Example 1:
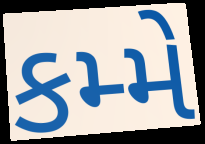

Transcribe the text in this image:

કમ્મે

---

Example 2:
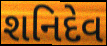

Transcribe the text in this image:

શનિદેવ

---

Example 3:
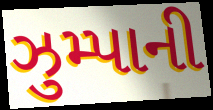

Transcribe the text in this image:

ઝુમ્પાની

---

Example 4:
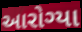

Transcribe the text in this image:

આરોગ્યા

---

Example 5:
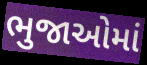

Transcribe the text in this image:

ભુજાઓમાં